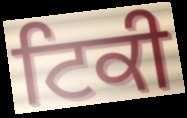
ਟਿਕੀ